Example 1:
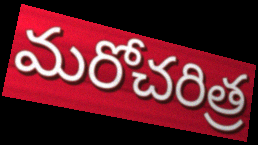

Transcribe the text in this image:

మరోచరిత్ర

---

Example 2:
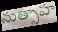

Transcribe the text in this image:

నుత్సాహ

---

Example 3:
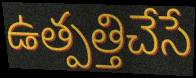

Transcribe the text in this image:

ఉత్పత్తిచేసే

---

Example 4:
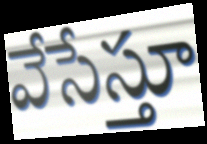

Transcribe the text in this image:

వేసేస్తూ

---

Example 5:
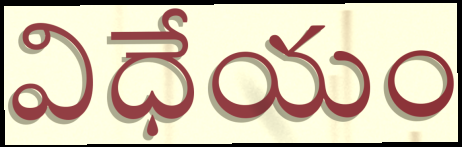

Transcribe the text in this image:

విధేయం